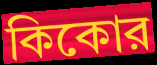
কিকোর